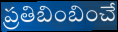
ప్రతిబింబించే